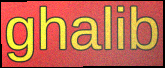
ghalib